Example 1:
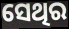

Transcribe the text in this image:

ସେଥିର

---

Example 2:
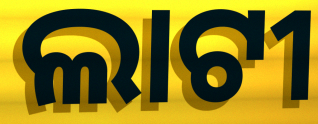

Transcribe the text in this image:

ଲାଟୀ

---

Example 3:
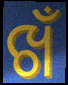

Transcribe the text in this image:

ଖଁ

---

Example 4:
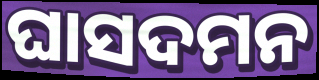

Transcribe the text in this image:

ଘାସଦମନ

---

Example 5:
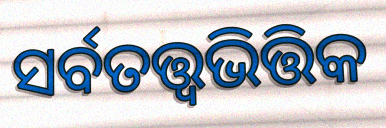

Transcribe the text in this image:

ସର୍ବତତ୍ତ୍ୱଭିତ୍ତିକ